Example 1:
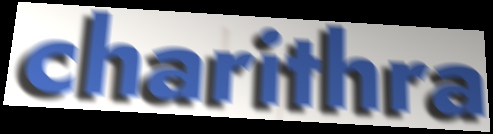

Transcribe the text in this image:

charithra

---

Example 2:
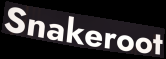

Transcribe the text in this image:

Snakeroot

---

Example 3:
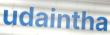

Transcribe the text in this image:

udaintha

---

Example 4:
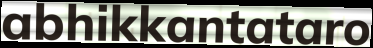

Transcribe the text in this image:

abhikkantataro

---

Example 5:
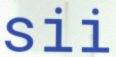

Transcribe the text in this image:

sii